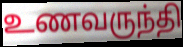
உணவருந்தி